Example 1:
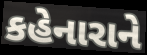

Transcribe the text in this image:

કહેનારાને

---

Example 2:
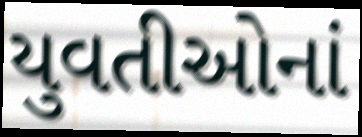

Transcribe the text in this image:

યુવતીઓનાં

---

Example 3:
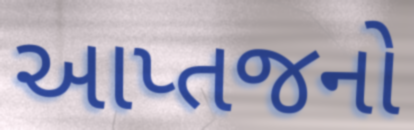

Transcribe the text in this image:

આપ્તજનો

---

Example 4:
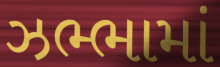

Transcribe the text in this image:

ઝભ્ભામાં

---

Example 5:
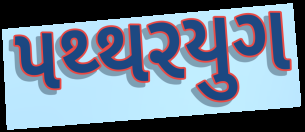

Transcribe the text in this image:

પથ્થરયુગ